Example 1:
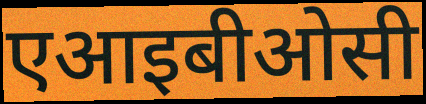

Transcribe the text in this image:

एआइबीओसी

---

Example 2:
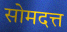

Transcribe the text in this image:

सोमदत्त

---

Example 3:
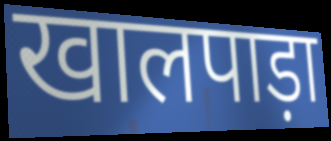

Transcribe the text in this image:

खालपाड़ा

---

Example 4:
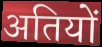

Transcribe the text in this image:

अतियों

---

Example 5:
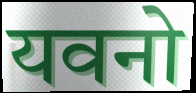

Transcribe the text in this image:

यवनो